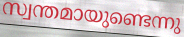
സ്വന്തമായുണ്ടെന്നു